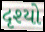
દૃશ્યો